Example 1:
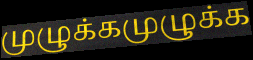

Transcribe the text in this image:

முழுக்கமுழுக்க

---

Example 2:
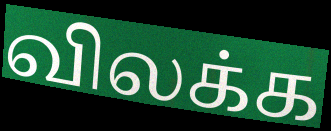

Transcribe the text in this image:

விலக்க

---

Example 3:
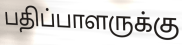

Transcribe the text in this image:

பதிப்பாளருக்கு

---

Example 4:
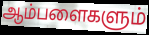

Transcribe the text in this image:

ஆம்பளைகளும்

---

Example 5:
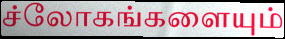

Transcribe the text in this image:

ச்லோகங்களையும்